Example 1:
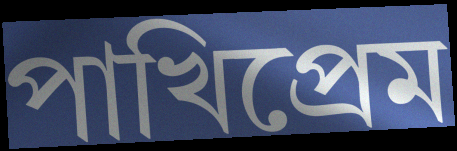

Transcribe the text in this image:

পাখিপ্রেম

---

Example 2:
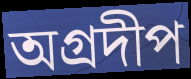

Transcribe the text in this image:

অগ্রদীপ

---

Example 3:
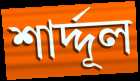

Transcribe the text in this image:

শার্দ্দূল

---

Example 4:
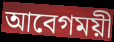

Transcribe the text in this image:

আবেগময়ী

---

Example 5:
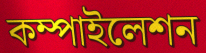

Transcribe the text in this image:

কম্পাইলেশন